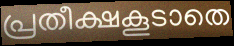
പ്രതീക്ഷകൂടാതെ